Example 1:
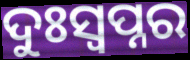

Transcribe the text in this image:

ଦୁଃସ୍ବପ୍ନର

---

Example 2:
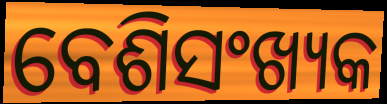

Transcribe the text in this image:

ବେଶିସଂଖ୍ୟକ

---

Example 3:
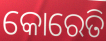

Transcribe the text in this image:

କୋରେତି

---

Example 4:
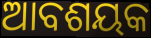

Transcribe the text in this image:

ଆବଶୟକ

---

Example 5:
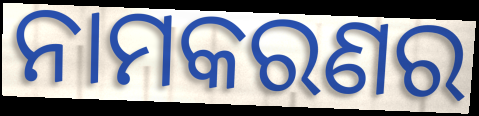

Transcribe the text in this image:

ନାମକରଣର